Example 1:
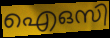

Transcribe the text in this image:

ഐഒസി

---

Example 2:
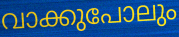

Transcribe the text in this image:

വാക്കുപോലും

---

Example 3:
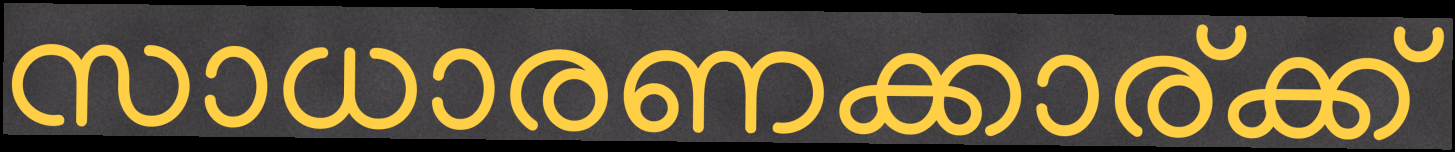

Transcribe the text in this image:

സാധാരണക്കാര്ക്ക്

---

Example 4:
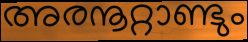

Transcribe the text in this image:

അരനൂറ്റാണ്ടും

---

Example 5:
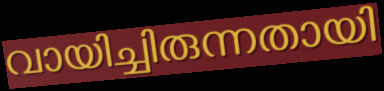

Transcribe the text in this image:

വായിച്ചിരുന്നതായി